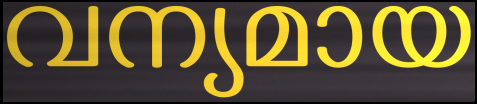
വന്യമായ